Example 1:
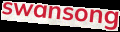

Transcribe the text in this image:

swansong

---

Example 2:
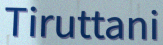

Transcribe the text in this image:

Tiruttani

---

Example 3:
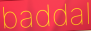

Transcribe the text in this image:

baddal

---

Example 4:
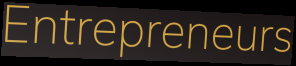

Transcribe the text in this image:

Entrepreneurs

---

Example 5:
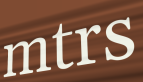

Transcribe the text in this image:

mtrs